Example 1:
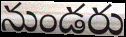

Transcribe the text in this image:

నుండరు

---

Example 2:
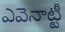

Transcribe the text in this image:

ఎవెనాట్టీ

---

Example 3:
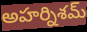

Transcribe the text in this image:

అహర్నిశమ్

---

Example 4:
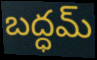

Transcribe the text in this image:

బద్ధమ్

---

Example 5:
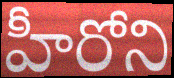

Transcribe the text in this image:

హీరోని